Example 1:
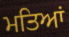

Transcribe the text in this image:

ਮਤਿਆਂ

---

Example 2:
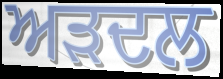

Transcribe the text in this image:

ਅੜਦਲ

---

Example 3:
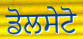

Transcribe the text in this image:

ਡੋਲਸੇਟੋ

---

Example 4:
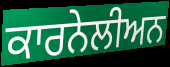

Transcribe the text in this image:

ਕਾਰਨੇਲੀਅਨ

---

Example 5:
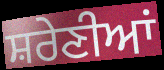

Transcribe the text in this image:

ਸ਼ਰੇਣੀਆਂ